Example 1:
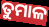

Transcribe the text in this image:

ତୁମାଳ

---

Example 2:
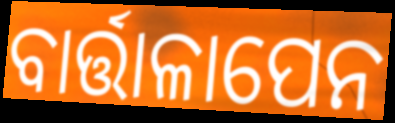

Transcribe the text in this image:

ବାର୍ତ୍ତାଳାପେନ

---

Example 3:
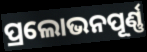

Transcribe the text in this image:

ପ୍ରଲୋଭନପୂର୍ଣ୍ଣ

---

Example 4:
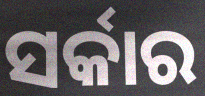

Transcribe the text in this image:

ସର୍କାର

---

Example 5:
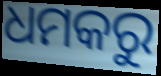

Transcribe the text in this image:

ଧମକରୁ